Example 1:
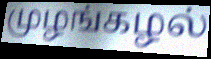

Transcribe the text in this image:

முழங்கழல்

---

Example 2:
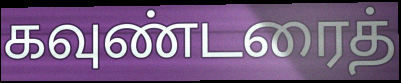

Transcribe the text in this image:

கவுண்டரைத்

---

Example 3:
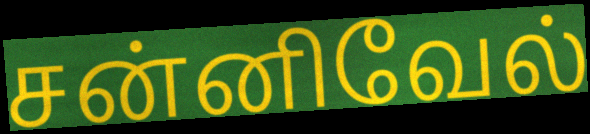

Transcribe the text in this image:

சன்னிவேல்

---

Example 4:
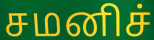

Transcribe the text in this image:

சமனிச்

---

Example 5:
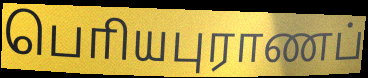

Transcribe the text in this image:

பெரியபுராணப்